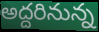
అద్దరినున్న